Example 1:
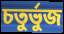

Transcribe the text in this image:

চতুর্ভুজ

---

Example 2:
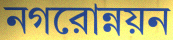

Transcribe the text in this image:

নগরোন্নয়ন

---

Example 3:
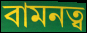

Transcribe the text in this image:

বামনত্ব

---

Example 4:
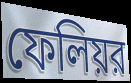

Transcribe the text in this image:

ফেলিয়র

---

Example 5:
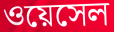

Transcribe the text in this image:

ওয়েসেল